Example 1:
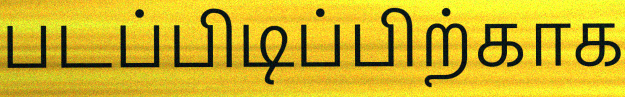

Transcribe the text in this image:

படப்பிடிப்பிற்காக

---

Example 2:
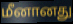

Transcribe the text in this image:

மீனானது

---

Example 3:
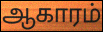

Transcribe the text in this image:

ஆகாரம்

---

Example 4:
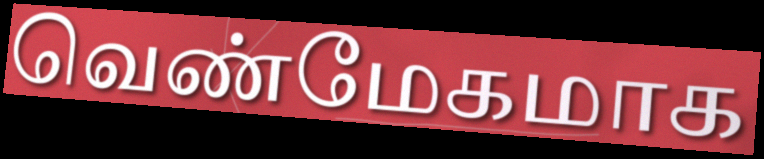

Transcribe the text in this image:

வெண்மேகமாக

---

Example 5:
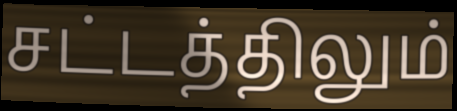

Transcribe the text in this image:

சட்டத்திலும்